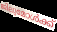
ജിലുമോൾക്ക്